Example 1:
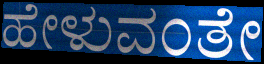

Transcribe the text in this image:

ಹೇಳುವಂತೇ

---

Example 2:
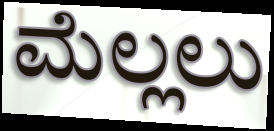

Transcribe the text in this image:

ಮೆಲ್ಲಲು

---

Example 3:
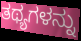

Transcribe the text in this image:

ತಥ್ಯಗಳನ್ನು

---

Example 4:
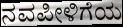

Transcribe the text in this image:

ನವಪೀಳಿಗೆಯ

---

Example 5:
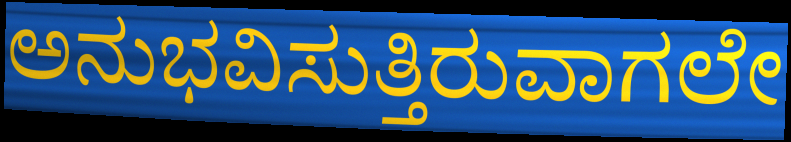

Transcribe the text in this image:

ಅನುಭವಿಸುತ್ತಿರುವಾಗಲೇ